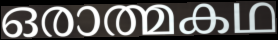
ഒരാത്മകഥ